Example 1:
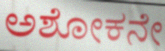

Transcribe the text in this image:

ಅಶೋಕನೇ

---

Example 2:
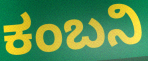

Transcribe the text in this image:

ಕಂಬನಿ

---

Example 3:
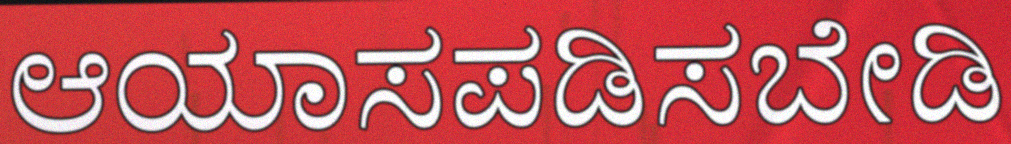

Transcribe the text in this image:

ಆಯಾಸಪಡಿಸಬೇಡಿ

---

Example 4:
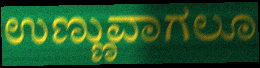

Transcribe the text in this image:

ಉಣ್ಣುವಾಗಲೂ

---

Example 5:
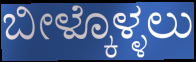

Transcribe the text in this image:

ಬೀಳ್ಕೊಳ್ಳಲು